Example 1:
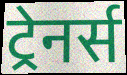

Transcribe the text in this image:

ट्रेनर्स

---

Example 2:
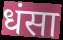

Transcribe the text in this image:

धंसा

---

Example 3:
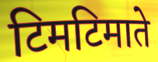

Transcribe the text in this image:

टिमटिमाते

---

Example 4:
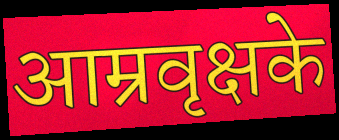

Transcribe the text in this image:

आम्रवृक्षके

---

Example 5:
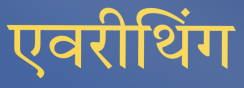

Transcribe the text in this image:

एवरीथिंग